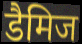
डैमिज